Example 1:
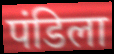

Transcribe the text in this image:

पंडिला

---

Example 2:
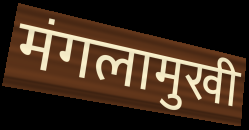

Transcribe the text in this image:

मंगलामुखी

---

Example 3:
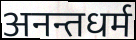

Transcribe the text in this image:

अनन्तधर्म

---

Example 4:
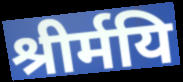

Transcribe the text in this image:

श्रीर्मयि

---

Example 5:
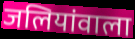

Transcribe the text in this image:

जलियांवाला